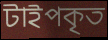
টাইপকৃত